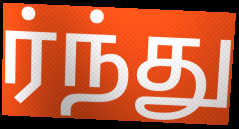
ர்ந்து